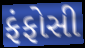
ફંફોસી